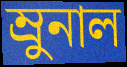
ম্রুনাল